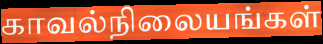
காவல்நிலையங்கள்